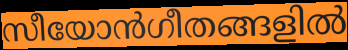
സീയോൻഗീതങ്ങളിൽ